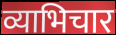
व्याभिचार